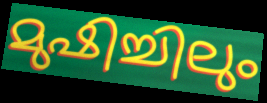
മുഷിച്ചിലും